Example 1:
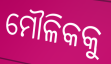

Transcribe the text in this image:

ମୌଳିକକୁ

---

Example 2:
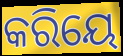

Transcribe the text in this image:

କରିୟେ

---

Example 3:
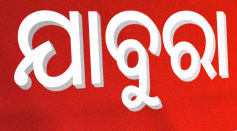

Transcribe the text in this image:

ଯାବୁରା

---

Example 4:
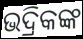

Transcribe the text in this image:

ଭଦ୍ରିକଙ୍କ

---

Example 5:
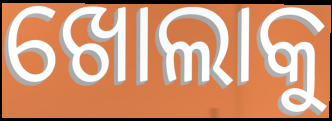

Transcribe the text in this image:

ଖୋଲାକୁ